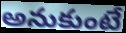
అనుకుంటే